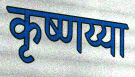
कृष्णय्या